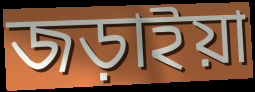
জড়াইয়া